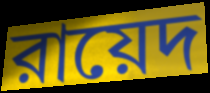
রায়েদ